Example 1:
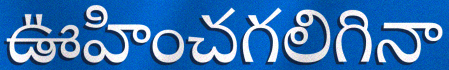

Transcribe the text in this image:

ఊహించగలిగినా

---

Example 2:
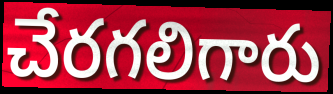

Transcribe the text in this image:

చేరగలిగారు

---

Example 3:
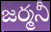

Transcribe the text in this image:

జర్మనీ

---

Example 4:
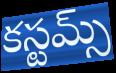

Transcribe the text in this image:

కస్టమ్స్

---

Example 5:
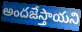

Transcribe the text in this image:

అందజేస్తాయని